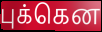
புக்கென